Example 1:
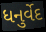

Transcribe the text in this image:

ધનુર્વેદ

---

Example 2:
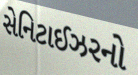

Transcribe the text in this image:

સેનિટાઈઝરનો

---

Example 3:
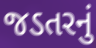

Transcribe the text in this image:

જડતરનું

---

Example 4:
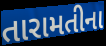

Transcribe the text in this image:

તારામતીના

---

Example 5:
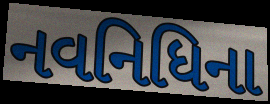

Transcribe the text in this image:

નવનિધિના